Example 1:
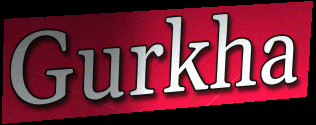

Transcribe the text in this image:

Gurkha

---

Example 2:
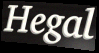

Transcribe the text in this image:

Hegal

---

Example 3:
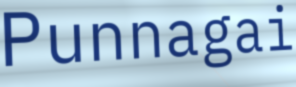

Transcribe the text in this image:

Punnagai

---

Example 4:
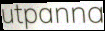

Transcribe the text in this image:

utpanna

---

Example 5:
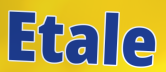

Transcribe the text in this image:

Etale